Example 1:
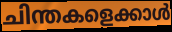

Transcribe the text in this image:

ചിന്തകളെക്കാൾ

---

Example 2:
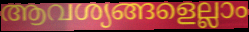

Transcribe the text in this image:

ആവശ്യങ്ങളെല്ലാം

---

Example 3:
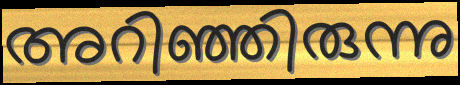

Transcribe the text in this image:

അറിഞ്ഞിരുന്നു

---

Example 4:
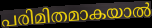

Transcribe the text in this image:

പരിമിതമാകയാൽ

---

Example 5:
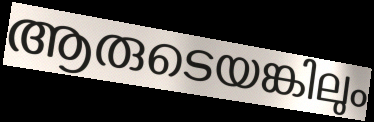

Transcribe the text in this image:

ആരുടെയങ്കിലും